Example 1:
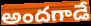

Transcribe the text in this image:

అందగాడే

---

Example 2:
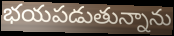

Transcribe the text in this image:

భయపడుతున్నాను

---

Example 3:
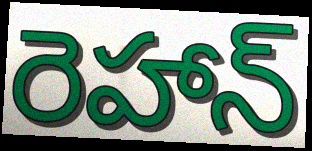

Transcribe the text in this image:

రెహాన్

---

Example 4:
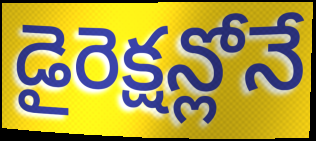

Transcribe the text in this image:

డైరెక్షన్లోనే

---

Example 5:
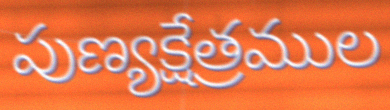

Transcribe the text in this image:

పుణ్యక్షేత్రముల